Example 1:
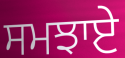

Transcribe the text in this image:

ਸਮਝਾਏ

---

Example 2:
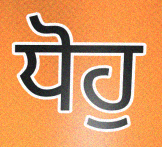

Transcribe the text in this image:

ਧੋਹੁ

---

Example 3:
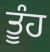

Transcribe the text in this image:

ਤੂੰਹ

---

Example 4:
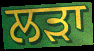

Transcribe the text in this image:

ਲੜਾ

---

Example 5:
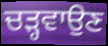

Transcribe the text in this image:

ਚੜ੍ਹਵਾਉਣ